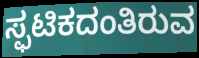
ಸ್ಫಟಿಕದಂತಿರುವ